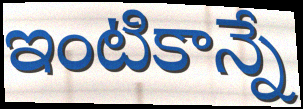
ఇంటికాన్నే